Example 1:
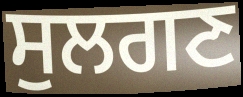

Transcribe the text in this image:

ਸੁਲਗਣ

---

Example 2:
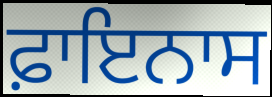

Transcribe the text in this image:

ਫ਼ਾਇਨਾਸ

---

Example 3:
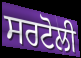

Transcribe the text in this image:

ਸਰਟੋਲੀ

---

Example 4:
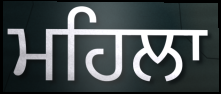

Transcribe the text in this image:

ਮਹਿਲਾ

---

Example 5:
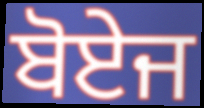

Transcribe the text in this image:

ਬੋਏਜ